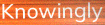
Knowingly